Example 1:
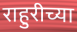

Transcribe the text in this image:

राहुरीच्या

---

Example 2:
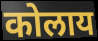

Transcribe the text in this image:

कोलाय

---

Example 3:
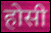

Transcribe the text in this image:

होसी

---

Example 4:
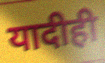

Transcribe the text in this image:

यादीही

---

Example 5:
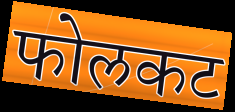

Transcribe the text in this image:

फोलकट